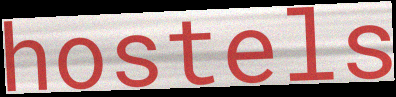
hostels